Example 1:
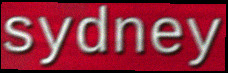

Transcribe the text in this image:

sydney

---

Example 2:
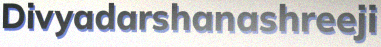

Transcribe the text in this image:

Divyadarshanashreeji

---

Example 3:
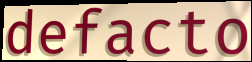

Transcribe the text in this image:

defacto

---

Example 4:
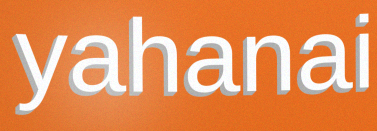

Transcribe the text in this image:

yahanai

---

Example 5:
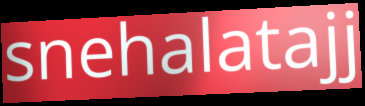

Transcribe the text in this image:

snehalatajj